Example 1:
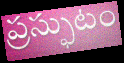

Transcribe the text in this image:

ప్రస్ఫుటం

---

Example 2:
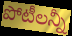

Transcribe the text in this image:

పోటీలన్నీ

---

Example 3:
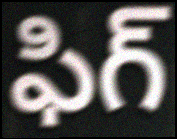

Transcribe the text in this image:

ఫిగ్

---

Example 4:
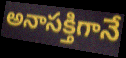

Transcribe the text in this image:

అనాసక్తిగానే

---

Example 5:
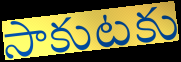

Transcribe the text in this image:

సాకుటకు